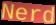
Nerd